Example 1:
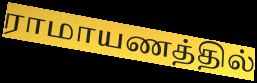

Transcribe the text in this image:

ராமாயணத்தில்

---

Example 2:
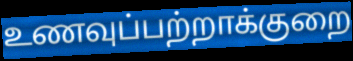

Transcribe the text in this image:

உணவுப்பற்றாக்குறை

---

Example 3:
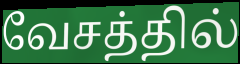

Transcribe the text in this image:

வேசத்தில்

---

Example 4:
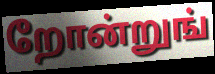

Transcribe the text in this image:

றோன்றுங்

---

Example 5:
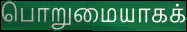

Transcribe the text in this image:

பொறுமையாகக்